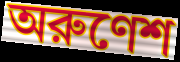
অরুণেশ